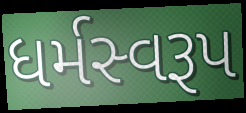
ધર્મસ્વરૂપ